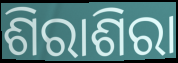
ଶିରାଶିରା